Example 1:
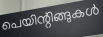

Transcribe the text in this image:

പെയിന്റിങ്ങുകൾ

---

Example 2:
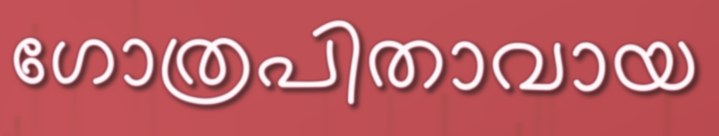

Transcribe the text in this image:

ഗോത്രപിതാവായ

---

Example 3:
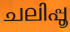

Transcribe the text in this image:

ചലിപ്പൂ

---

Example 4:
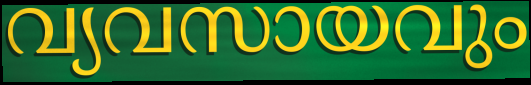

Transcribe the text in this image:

വ്യവസായവും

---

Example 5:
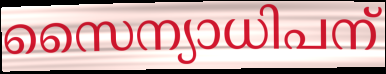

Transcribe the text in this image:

സൈന്യാധിപന്